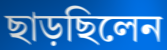
ছাড়ছিলেন